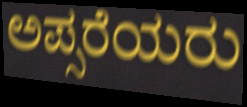
ಅಪ್ಸರೆಯರು